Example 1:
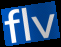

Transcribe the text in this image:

flv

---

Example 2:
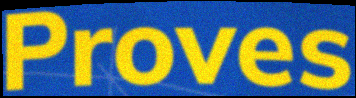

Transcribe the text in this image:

Proves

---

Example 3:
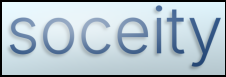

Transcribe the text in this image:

soceity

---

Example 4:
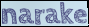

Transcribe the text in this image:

narake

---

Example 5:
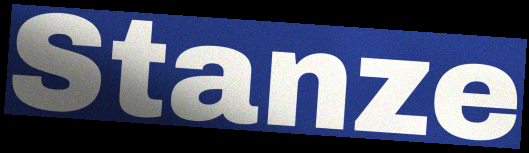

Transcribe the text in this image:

Stanze